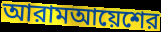
আরামআয়েশের